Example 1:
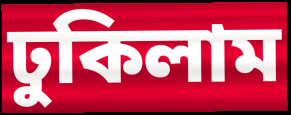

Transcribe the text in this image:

ঢুকিলাম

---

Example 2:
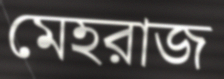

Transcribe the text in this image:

মেহরাজ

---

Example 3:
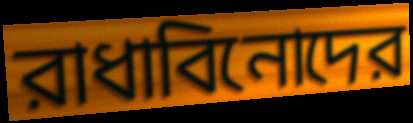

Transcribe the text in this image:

রাধাবিনোদের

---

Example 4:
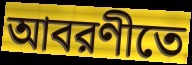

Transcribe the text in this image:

আবরণীতে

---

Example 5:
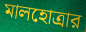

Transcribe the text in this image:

মালহোত্রার